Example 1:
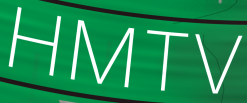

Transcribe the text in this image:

HMTV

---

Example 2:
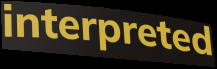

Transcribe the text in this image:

interpreted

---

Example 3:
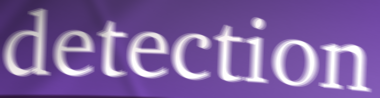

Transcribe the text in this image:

detection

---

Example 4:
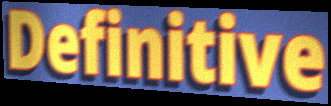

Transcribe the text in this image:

Definitive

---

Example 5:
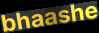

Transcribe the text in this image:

bhaashe